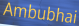
Ambubhai